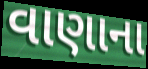
વાણાના